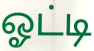
ஓட்டி